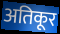
अतिकूर